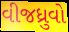
વીજધ્રુવો